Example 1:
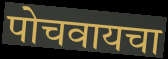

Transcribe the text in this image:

पोचवायचा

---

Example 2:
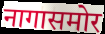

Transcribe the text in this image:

नागासमोर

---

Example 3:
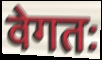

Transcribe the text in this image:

वेगतः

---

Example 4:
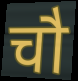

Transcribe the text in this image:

चौ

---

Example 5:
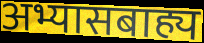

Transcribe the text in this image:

अभ्यासबाह्य